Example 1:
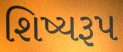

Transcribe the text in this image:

શિષ્યરૂપ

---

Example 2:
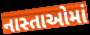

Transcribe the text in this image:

નાસ્તાઓમાં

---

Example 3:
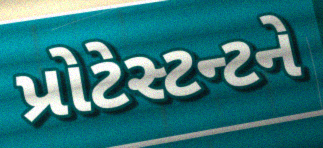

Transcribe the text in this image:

પ્રોટેસ્ટન્ટને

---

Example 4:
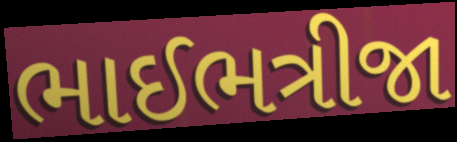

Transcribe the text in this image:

ભાઈભત્રીજા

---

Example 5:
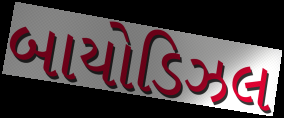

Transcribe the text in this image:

બાયોડિઝલ